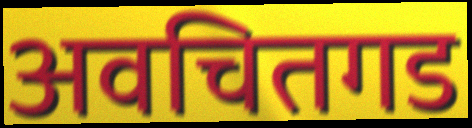
अवचितगड